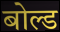
बोल्ड